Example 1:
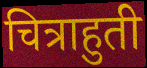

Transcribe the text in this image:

चित्राहुती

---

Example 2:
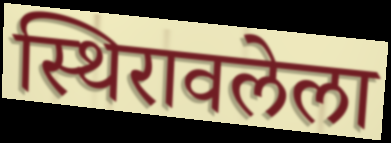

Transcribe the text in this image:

स्थिरावलेला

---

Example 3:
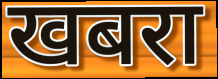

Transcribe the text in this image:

खबरा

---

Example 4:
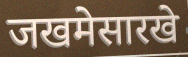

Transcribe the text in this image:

जखमेसारखे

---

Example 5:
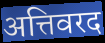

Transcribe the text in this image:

अत्तिवरद